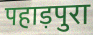
पहाड़पुरा